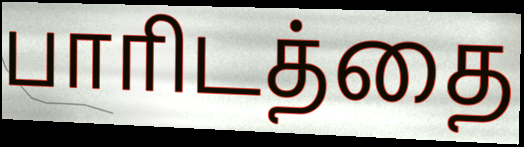
பாரிடத்தை